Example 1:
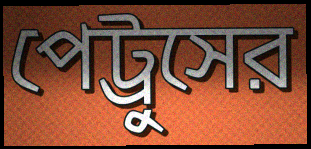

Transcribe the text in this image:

পেট্রুসের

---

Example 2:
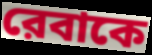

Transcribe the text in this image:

রেবাকে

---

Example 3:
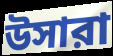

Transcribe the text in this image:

উসারা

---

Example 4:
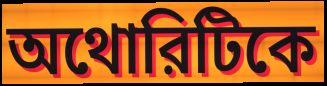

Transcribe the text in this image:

অথোরিটিকে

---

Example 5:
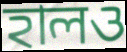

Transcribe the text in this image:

হালও